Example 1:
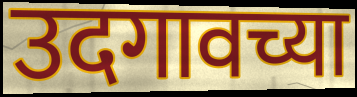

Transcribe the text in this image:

उदगावच्या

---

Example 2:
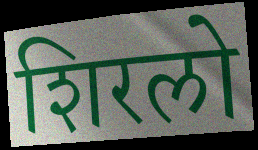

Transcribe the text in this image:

शिरलो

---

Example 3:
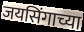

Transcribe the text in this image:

जयसिंगाच्या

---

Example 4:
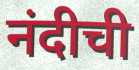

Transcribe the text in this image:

नंदीची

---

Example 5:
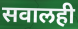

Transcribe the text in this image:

सवालही